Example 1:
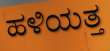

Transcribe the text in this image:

ಹಳಿಯತ್ತ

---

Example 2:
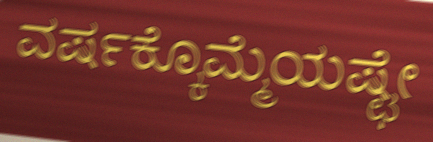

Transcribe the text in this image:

ವರ್ಷಕ್ಕೊಮ್ಮೆಯಷ್ಟೇ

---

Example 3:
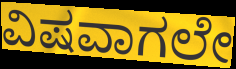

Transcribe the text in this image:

ವಿಷವಾಗಲೇ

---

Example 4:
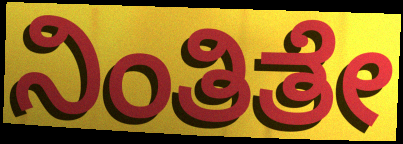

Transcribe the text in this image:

ನಿಂತಿತೇ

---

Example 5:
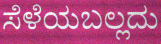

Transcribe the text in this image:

ಸೆಳೆಯಬಲ್ಲದು